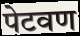
पेटवण